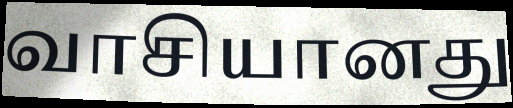
வாசியானது